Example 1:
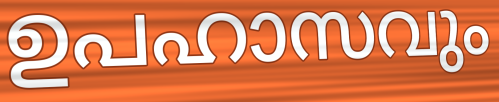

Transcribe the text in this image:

ഉപഹാസവും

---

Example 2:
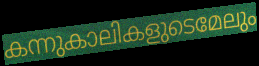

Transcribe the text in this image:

കന്നുകാലികളുടെമേലും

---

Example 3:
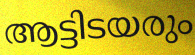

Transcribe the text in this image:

ആട്ടിടയരും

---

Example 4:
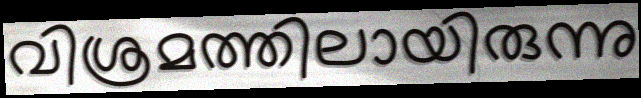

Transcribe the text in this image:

വിശ്രമത്തിലായിരുന്നു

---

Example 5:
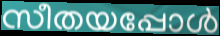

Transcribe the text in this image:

സീതയപ്പോൾ